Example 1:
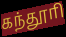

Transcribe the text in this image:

கந்தூரி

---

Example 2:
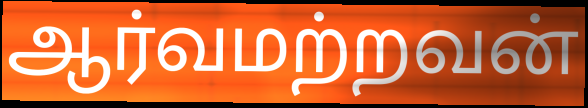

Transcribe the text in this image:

ஆர்வமற்றவன்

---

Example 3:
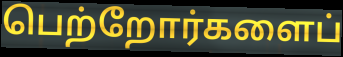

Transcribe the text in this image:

பெற்றோர்களைப்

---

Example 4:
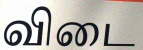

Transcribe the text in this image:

விடை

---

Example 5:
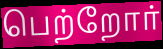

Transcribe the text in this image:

பெற்றோர்